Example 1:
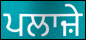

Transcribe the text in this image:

ਪਲਾਜ਼ੇ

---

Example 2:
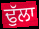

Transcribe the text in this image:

ਢੁੱਲਾ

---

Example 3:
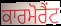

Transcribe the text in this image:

ਕਾਰਮੋਰੈਂਟ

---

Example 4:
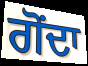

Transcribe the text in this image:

ਗੋਂਦਾ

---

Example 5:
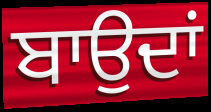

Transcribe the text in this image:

ਬਾਉਦਾਂ